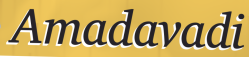
Amadavadi